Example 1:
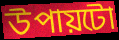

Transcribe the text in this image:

উপায়টো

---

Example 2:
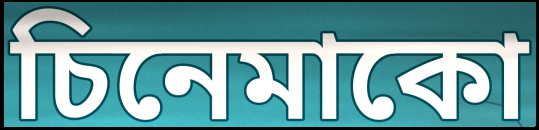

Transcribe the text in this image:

চিনেমাকো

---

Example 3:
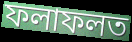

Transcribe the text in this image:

ফলাফলত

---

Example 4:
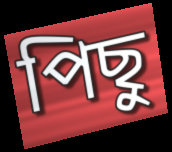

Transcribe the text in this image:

পিছু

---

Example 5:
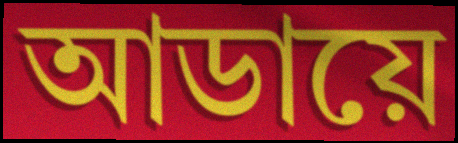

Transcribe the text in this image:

আডায়ে